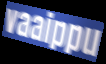
vaaippu